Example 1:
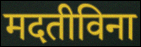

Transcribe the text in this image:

मदतीविना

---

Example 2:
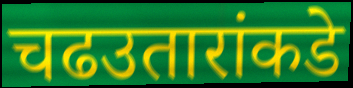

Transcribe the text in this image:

चढउतारांकडे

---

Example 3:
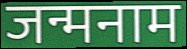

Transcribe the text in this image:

जन्मनाम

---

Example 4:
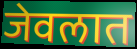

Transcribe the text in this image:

जेवलात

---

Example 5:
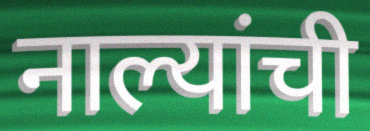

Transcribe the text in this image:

नाल्यांची